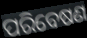
ପରିବେଷଣ